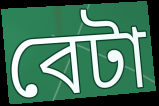
বেটা